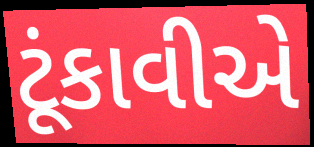
ટૂંકાવીએ